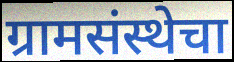
ग्रामसंस्थेचा